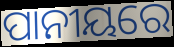
ପାନୀୟରେ